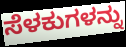
ಸೆಳಕುಗಳನ್ನು